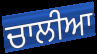
ਚਾਲੀਆ